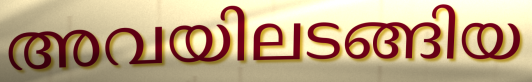
അവയിലടങ്ങിയ